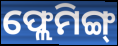
ଫ୍ଲେମିଙ୍ଗ୍